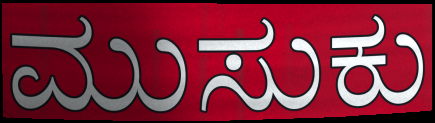
ಮುಸುಕು